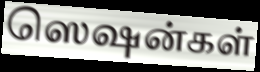
ஸெஷன்கள்